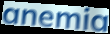
anemia